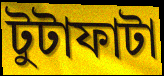
টুটাফাটা